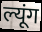
ल्यूंग